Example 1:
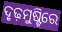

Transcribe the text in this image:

ଦୃଢ଼ମୁଷ୍ଟିରେ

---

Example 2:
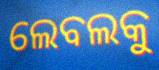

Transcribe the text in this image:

ଲେବଲକୁ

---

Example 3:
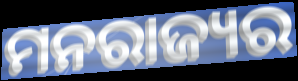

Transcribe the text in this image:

ମନରାଜ୍ୟର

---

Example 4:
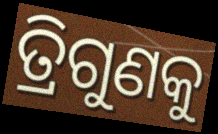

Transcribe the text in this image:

ତ୍ରିଗୁଣକୁ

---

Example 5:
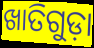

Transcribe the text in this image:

ଖାତିଗୁଡ଼ା